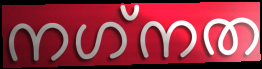
നഗ്‌നത